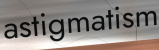
astigmatism